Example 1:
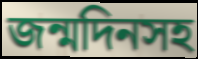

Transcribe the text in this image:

জন্মদিনসহ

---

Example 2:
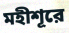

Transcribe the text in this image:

মহীশূরে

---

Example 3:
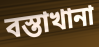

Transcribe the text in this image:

বস্তাখানা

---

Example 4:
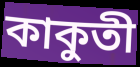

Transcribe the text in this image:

কাকুতী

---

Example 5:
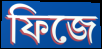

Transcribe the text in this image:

ফিজে